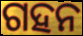
ଗହନ